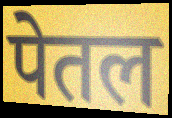
पेतल